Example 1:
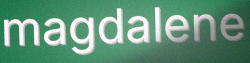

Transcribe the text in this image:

magdalene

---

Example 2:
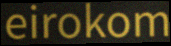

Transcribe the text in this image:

eirokom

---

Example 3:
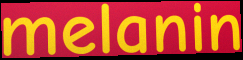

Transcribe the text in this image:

melanin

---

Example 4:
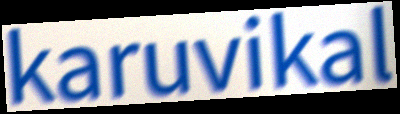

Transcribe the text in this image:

karuvikal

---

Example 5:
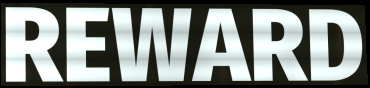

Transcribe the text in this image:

REWARD